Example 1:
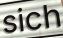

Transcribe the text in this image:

sich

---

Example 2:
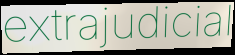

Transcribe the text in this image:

extrajudicial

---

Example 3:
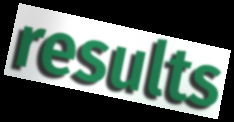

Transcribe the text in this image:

results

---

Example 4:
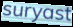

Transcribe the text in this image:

suryast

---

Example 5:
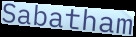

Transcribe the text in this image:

Sabatham